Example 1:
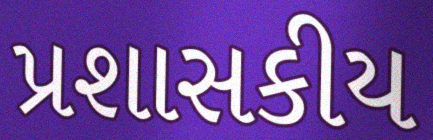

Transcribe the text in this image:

પ્રશાસકીય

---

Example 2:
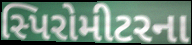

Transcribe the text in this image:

સ્પિરોમીટરના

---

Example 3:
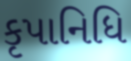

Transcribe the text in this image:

કૃપાનિધિ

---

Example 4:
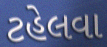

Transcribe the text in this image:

ટહેલવા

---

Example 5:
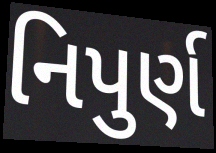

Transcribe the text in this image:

નિપુર્ણ